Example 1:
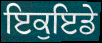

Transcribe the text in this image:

ਇਕੁਇਡੇ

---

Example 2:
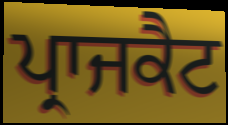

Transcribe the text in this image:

ਪ੍ਰਾਜਕੈਟ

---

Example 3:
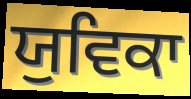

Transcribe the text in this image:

ਯੁਵਿਕਾ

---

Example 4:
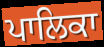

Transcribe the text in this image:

ਪਾਲਿਕਾ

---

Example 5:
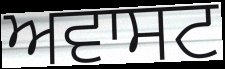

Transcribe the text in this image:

ਅਵਾਸਟ